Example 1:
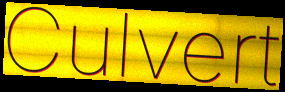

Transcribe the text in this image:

Culvert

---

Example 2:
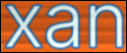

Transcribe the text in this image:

xan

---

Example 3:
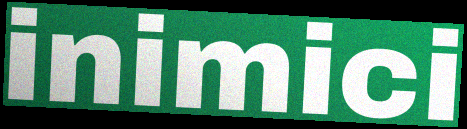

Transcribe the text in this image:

inimici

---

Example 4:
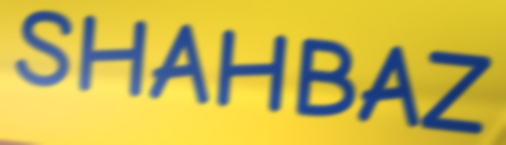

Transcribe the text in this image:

SHAHBAZ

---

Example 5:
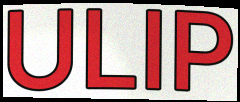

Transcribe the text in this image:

ULIP